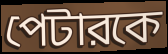
পেটারকে